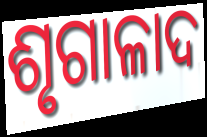
ଶୃଗାଳାଦ